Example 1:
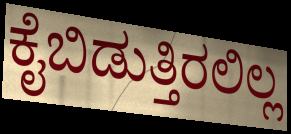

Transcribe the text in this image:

ಕೈಬಿಡುತ್ತಿರಲಿಲ್ಲ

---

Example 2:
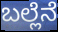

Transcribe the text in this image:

ಬಲ್ಲೆನೆ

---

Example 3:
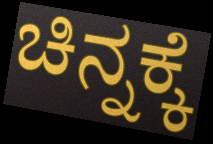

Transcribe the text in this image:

ಚಿನ್ನಕ್ಕೆ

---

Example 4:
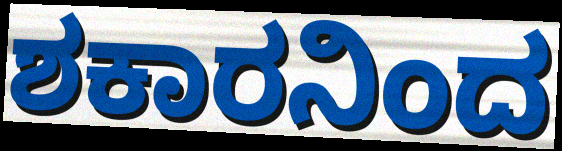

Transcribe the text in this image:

ಶಕಾರನಿಂದ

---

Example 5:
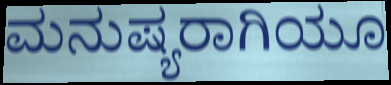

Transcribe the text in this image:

ಮನುಷ್ಯರಾಗಿಯೂ